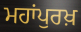
ਮਹਾਂਪੁਰਖ਼